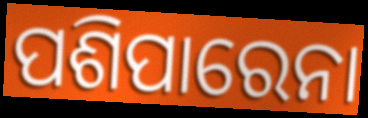
ପଶିପାରେନା